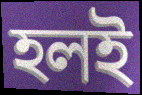
হলই